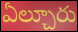
ఏల్చూరు